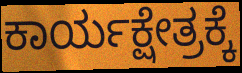
ಕಾರ್ಯಕ್ಷೇತ್ರಕ್ಕೆ